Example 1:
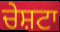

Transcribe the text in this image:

ਚੇਸ਼ਟਾ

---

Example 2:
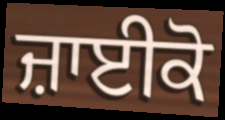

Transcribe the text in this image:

ਜ਼ਾਈਕੋ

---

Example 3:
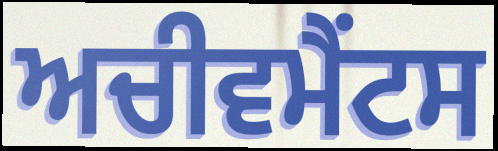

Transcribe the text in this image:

ਅਚੀਵਮੈਂਟਸ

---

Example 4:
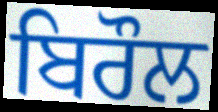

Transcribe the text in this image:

ਬਿਰੌਲ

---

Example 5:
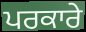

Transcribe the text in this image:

ਪਰਕਾਰੇ